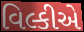
વિલ્કીએ